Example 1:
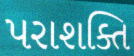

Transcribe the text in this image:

પરાશક્તિ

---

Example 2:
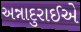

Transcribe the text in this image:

અન્નાદુરાઈએ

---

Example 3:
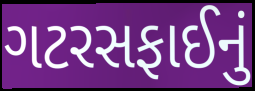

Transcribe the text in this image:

ગટરસફાઈનું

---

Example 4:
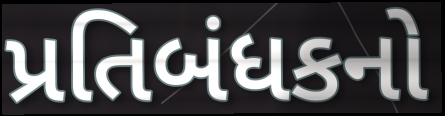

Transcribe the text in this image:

પ્રતિબંધકનો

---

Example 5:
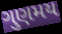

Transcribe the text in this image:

ગુણમય